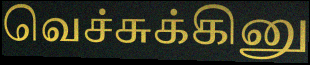
வெச்சுக்கினு